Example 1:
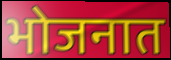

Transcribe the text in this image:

भोजनात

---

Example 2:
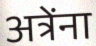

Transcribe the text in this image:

अत्रेंना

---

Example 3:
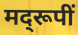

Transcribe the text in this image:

मद्‌रूपीं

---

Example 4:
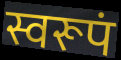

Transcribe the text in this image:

स्वरूपं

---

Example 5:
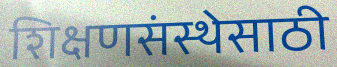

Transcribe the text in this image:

शिक्षणसंस्थेसाठी